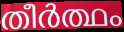
തീർത്ഥം